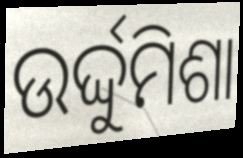
ଉର୍ଦ୍ଦୁମିଶା